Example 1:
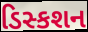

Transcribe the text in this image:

ડિસ્કશન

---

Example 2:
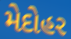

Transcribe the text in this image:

મેદોહર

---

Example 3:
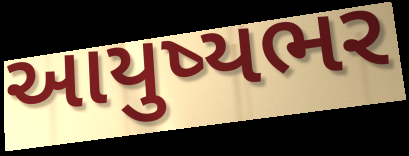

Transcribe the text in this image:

આયુષ્યભર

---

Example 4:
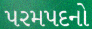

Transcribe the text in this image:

પરમપદનો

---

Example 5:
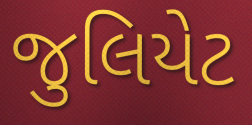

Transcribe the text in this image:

જુલિયેટ